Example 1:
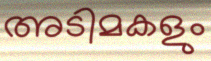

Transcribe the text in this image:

അടിമകളും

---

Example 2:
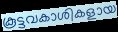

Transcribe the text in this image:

കൂട്ടവകാശികളായ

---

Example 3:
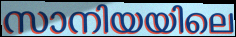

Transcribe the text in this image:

സാനിയയിലെ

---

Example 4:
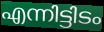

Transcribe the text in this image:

എന്നിട്ടിടം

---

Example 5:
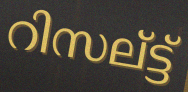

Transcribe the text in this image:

റിസല്ട്ട്